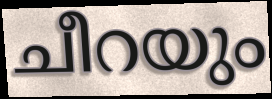
ചീറയും